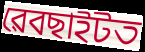
ৱেবছাইটত